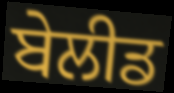
ਬੇਲੀਡ